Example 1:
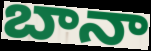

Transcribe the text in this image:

బానా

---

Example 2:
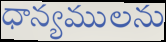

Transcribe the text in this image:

ధాన్యములను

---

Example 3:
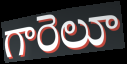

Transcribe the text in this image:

గారెలూ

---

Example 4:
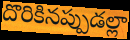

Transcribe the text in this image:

దొరికినప్పుడల్లా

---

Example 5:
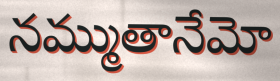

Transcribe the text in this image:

నమ్ముతానేమో